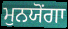
ਮੁਨਯੋਂਗਾ